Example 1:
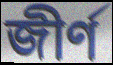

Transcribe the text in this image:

জীর্ণ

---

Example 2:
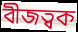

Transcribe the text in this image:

বীজত্বক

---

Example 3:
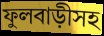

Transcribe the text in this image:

ফুলবাড়ীসহ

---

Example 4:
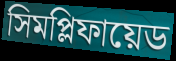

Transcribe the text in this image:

সিমপ্লিফায়েড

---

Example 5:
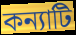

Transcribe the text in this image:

কন্যাটি